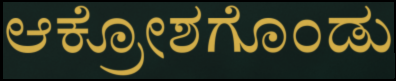
ಆಕ್ರೋಶಗೊಂಡು